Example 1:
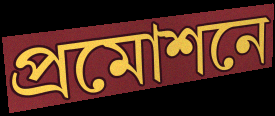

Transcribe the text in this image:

প্রমোশনে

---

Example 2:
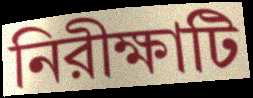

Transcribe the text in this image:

নিরীক্ষাটি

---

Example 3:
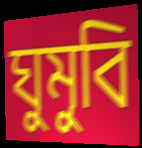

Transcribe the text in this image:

ঘুমুবি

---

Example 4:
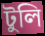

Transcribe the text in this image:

টুলি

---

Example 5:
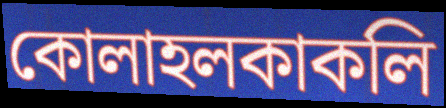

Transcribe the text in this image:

কোলাহলকাকলি